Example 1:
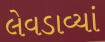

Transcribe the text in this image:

લેવડાવ્યાં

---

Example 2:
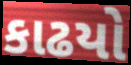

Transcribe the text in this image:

કાઢયો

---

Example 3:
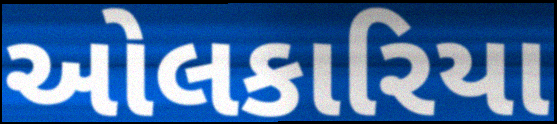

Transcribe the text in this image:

ઓલકારિયા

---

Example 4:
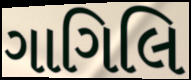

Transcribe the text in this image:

ગાગિલિ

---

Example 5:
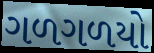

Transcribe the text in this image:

ગળગળયો